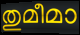
തുമീമാ